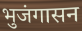
भुजंगासन